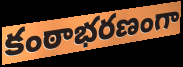
కంఠాభరణంగా